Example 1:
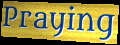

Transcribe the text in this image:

Praying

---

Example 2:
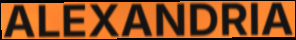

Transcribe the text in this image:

ALEXANDRIA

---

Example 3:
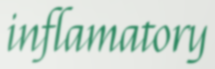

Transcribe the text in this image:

inflamatory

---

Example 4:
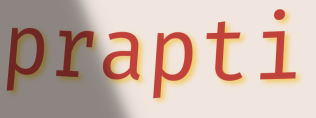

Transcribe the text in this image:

prapti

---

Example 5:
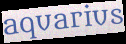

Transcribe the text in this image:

aquarius